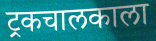
ट्रकचालकाला